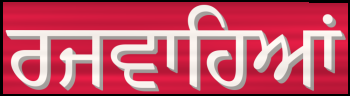
ਰਜਵਾਹਿਆਂ